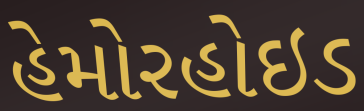
હેમોરહોઇડ